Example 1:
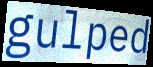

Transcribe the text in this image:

gulped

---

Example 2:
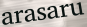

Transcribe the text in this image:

arasaru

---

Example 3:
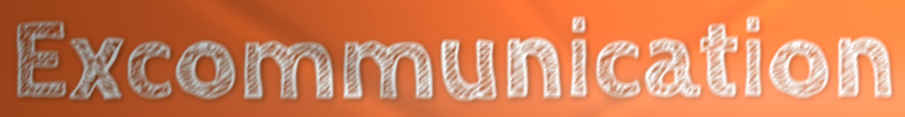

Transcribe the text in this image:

Excommunication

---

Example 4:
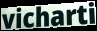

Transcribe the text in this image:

vicharti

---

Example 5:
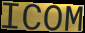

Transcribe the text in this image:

ICOM